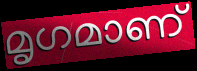
മൃഗമാണ്